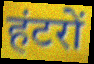
हंटरों